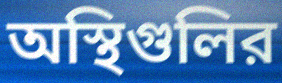
অস্থিগুলির